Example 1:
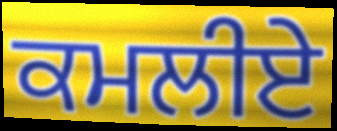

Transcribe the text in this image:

ਕਮਲੀਏ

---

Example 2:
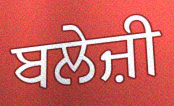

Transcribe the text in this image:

ਬਲੇਜ਼ੀ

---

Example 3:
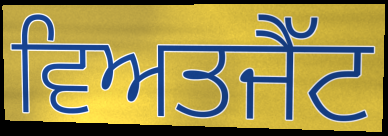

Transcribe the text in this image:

ਵਿਅਤਜੈੱਟ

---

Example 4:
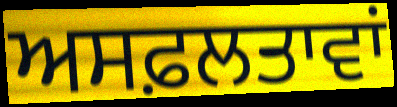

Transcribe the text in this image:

ਅਸਫ਼ਲਤਾਵਾਂ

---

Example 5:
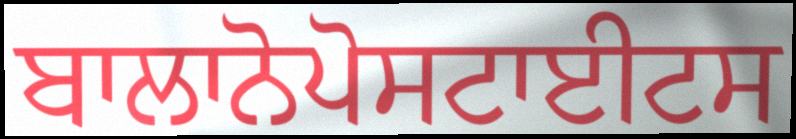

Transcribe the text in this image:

ਬਾਲਾਨੋਪੋਸਟਾਈਟਸ